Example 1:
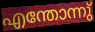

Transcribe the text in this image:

എന്തോന്നു്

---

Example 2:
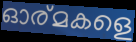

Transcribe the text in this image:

ഓര്മകളെ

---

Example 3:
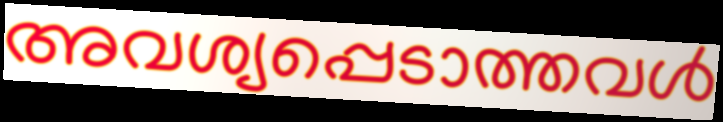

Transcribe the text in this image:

അവശ്യപ്പെടാത്തവൾ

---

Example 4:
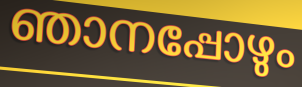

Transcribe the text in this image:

ഞാനപ്പോഴും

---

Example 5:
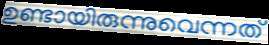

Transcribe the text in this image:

ഉണ്ടായിരുന്നുവെന്നത്